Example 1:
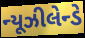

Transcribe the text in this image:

ન્યૂઝીલેન્ડે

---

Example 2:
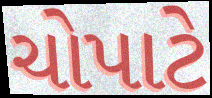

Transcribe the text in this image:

ચોપાટે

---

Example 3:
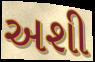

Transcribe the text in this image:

અશી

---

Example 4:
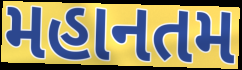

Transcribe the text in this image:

મહાનતમ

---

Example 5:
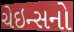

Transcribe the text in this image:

ચેઇન્સનો